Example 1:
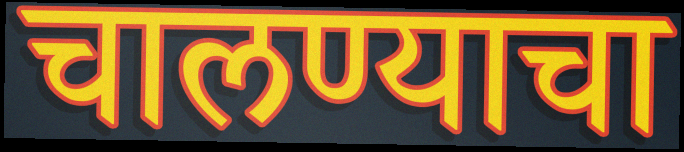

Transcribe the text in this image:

चालण्याचा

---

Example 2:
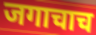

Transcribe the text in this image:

जगाचाच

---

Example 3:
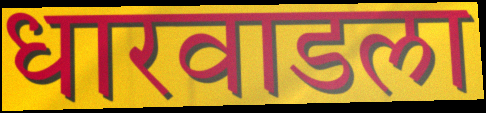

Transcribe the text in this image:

धारवाडला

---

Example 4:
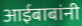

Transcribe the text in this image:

आईबाबांनी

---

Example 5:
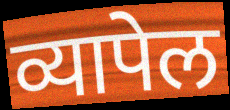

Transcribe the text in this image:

व्यापेल